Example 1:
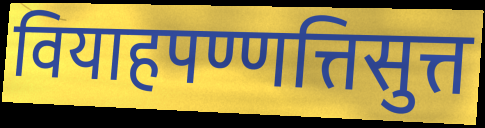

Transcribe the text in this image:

वियाहपण्णत्तिसुत्त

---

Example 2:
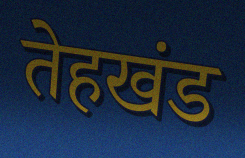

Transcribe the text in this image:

तेहखंड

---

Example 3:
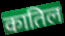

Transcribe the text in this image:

कातिल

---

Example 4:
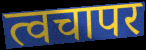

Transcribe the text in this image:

त्वचापर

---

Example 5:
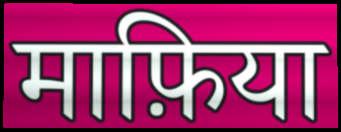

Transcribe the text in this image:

माफ़िया